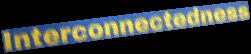
Interconnectedness